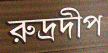
রুদ্রদীপ